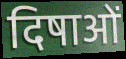
दिषाओं